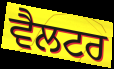
ਵੈਲਟਰ